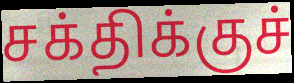
சக்திக்குச்